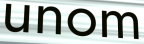
unom